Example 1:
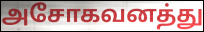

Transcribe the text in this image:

அசோகவனத்து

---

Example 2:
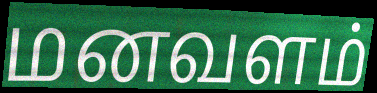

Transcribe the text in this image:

மனவளம்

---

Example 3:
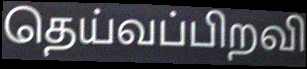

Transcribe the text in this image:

தெய்வப்பிறவி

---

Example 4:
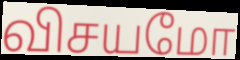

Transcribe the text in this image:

விசயமோ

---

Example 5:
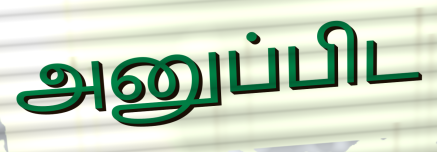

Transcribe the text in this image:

அனுப்பிட